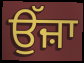
ਉੱਜ਼ਾ